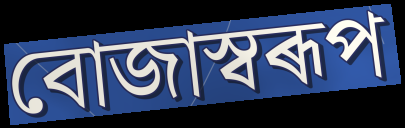
বোজাস্বৰূপ